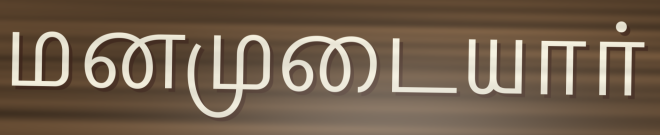
மனமுடையார்